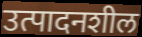
उत्पादनशील